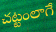
చట్టంలాగే